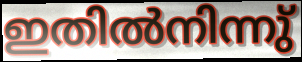
ഇതിൽനിന്നു്